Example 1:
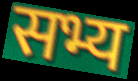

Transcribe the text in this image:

सभ्य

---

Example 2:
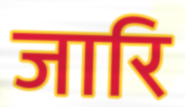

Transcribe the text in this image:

जारि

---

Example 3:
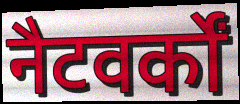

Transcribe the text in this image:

नैटवर्कों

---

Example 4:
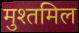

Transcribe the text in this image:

मुश्तमिल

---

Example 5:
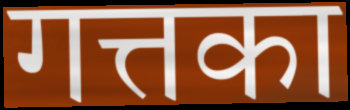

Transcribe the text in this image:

गत्तका